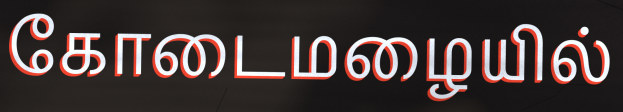
கோடைமழையில்